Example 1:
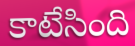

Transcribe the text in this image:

కాటేసింది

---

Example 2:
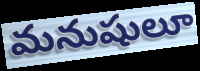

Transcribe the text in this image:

మనుషులూ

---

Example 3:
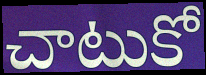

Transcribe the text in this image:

చాటుకో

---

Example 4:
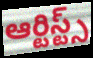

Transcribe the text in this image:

ఆర్టిస్ట్స్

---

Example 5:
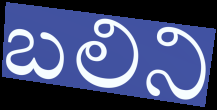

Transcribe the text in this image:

బలిని